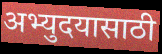
अभ्युदयासाठी